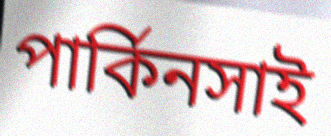
পার্কিনসাই